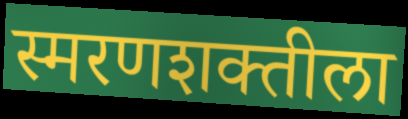
स्मरणशक्तीला